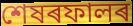
শেষৰফালৰ